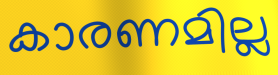
കാരണമില്ല